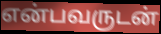
என்பவருடன்